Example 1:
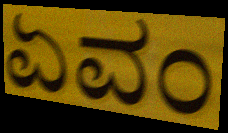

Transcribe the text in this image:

ಏವಂ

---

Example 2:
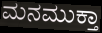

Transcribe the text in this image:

ಮನಮುಕ್ತಾ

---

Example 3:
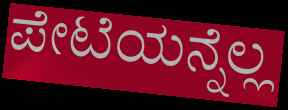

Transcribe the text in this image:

ಪೇಟೆಯನ್ನೆಲ್ಲ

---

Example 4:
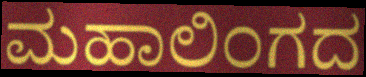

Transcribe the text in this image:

ಮಹಾಲಿಂಗದ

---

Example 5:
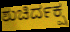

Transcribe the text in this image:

ಶುಚಿರ್ದಕ್ಷ